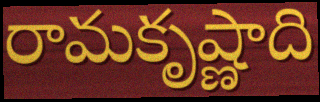
రామకృష్ణాది